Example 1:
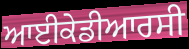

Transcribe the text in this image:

ਆਈਕੇਡੀਆਰਸੀ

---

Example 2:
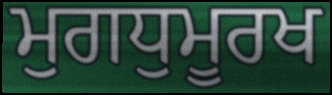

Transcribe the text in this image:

ਮੁਗਧੁਮੂਰਖ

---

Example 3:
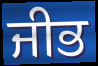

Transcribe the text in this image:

ਜੀਭ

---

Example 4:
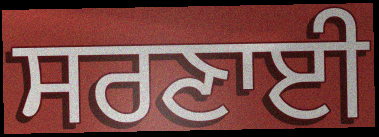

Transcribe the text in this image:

ਸਰਣਾਈ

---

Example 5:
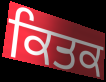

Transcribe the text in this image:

ਕਿਤਕ